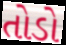
તોડો